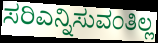
ಸರಿಎನ್ನಿಸುವಂತಿಲ್ಲ